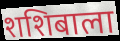
शशिबाला